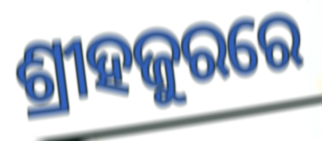
ଶ୍ରୀହଜୁରରେ